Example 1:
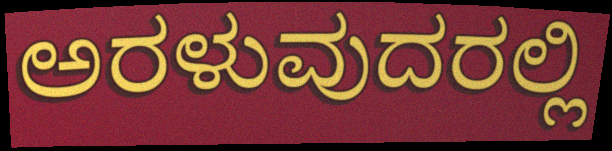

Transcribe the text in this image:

ಅರಳುವುದರಲ್ಲಿ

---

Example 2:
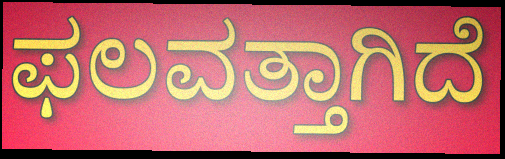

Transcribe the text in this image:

ಫಲವತ್ತಾಗಿದೆ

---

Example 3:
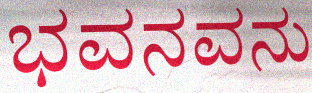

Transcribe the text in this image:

ಭವನವನು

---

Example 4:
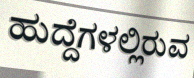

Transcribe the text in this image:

ಹುದ್ದೆಗಳಲ್ಲಿರುವ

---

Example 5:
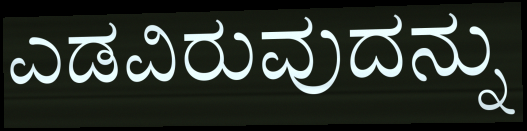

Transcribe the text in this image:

ಎಡವಿರುವುದನ್ನು